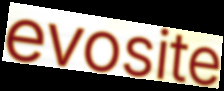
evosite